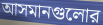
আসমানগুলোর